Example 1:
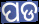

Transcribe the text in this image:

ପଡ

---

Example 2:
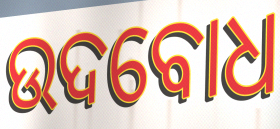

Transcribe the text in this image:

ଉଦବୋଧ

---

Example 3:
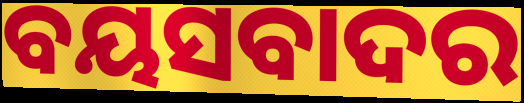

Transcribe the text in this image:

ବୟସବାଦର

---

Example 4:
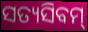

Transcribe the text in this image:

ସତ୍ୟସିବମ୍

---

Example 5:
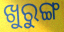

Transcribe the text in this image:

ଖୁରୁଙ୍ଗ